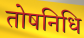
तोषनिधि